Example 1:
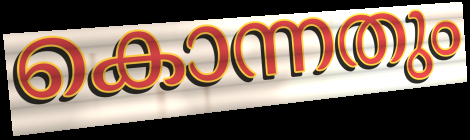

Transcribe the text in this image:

കൊന്നതും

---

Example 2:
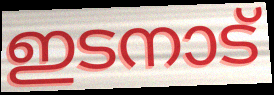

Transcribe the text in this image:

ഇടനാട്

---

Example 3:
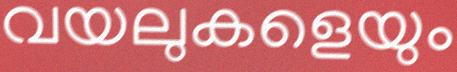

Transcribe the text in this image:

വയലുകളെയും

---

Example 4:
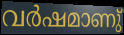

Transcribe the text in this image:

വർഷമാണു്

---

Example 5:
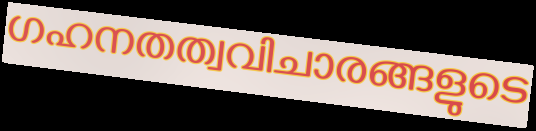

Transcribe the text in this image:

ഗഹനതത്വവിചാരങ്ങളുടെ